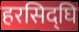
हरसिद्घि